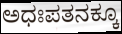
ಅಧಃಪತನಕ್ಕೂ